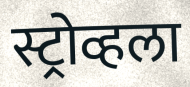
स्ट्रोव्हला